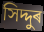
সিদ্দুৰ